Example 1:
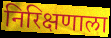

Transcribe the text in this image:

निरिक्षणाला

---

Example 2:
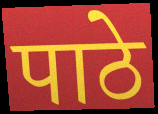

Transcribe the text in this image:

पाठे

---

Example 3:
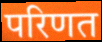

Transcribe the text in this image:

परिणत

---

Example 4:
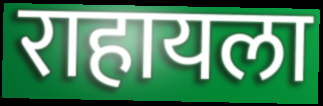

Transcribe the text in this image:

राहायला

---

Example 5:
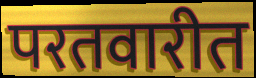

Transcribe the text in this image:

परतवारीत